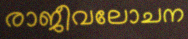
രാജീവലോചന